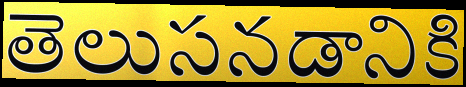
తెలుసనడానికి